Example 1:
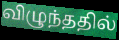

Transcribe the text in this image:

விழுந்ததில்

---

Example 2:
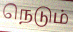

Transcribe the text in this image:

நெடும்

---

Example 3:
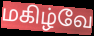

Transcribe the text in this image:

மகிழ்வே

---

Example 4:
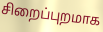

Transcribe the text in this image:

சிறைப்புறமாக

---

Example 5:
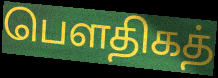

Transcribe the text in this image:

பௌதிகத்